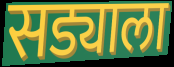
सड्याला